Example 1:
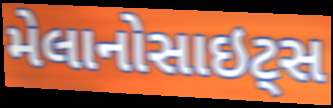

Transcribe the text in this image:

મેલાનોસાઇટ્સ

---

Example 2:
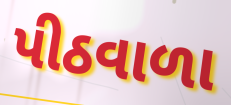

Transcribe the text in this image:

પીઠવાળા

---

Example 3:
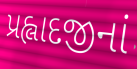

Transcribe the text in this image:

પ્રહ્લાદજીનાં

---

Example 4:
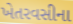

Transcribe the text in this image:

ખેતરવસીના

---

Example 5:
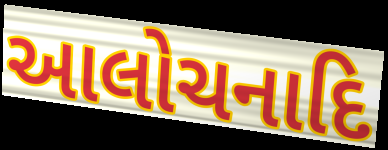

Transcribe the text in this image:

આલોચનાદિ